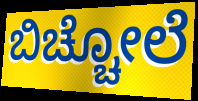
ಬಿಚ್ಚೋಲೆ